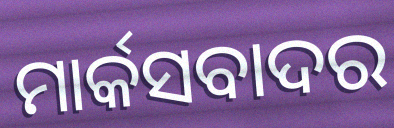
ମାର୍କସବାଦର